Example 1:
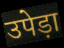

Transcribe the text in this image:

उपेड़ा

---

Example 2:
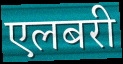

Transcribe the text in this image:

एलबरी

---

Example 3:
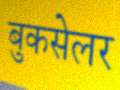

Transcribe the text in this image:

बुकसेलर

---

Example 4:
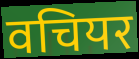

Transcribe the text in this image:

वचियर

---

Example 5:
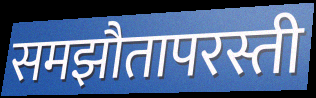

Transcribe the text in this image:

समझौतापरस्ती